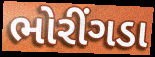
ભોરીંગડા